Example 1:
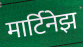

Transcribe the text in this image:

मार्टिनेझ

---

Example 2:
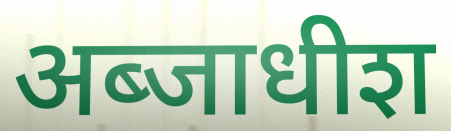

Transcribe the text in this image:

अब्जाधीश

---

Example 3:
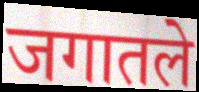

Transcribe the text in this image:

जगातले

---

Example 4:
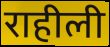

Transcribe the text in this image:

राहीली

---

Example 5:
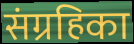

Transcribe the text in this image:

संग्रहिका